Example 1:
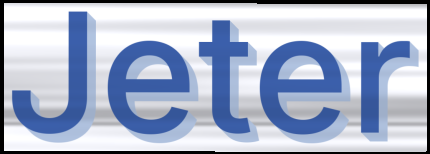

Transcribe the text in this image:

Jeter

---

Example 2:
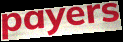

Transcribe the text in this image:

payers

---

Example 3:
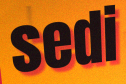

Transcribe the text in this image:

sedi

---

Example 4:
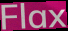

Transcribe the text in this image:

Flax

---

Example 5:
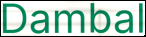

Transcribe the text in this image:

Dambal